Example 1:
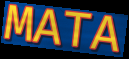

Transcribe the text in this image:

MATA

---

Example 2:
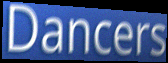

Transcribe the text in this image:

Dancers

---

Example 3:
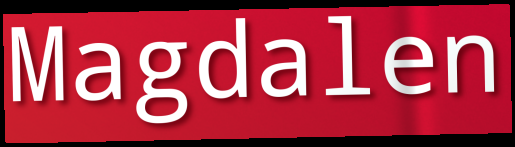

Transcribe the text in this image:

Magdalen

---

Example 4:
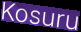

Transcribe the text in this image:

Kosuru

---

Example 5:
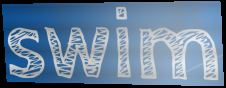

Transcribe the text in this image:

swim